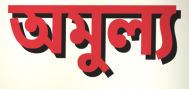
অমুল্য